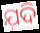
ଯ଼ଦି